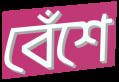
বেঁশে